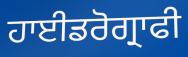
ਹਾਈਡਰੋਗ੍ਰਾਫੀ